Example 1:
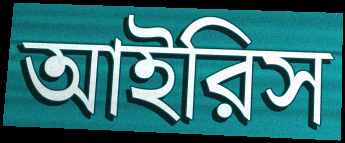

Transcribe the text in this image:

আইরিস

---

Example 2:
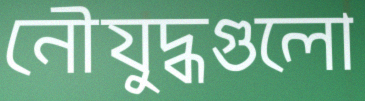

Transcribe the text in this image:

নৌযুদ্ধগুলো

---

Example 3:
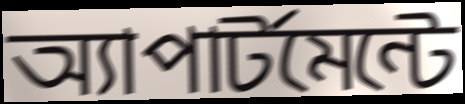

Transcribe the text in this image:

অ্যাপার্টমেন্টে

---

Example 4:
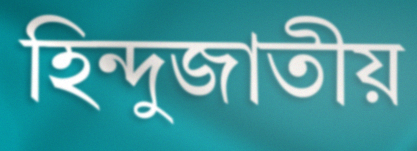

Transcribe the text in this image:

হিন্দুজাতীয়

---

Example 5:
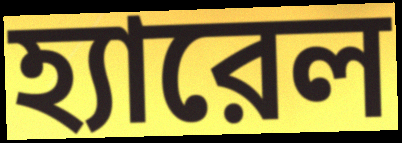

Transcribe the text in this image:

হ্যারেল